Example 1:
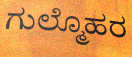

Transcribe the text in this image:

ಗುಲ್ಮೊಹರ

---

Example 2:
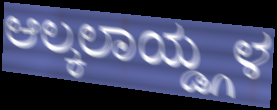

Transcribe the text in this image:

ಆಲ್ಕಲಾಯ್ಡ್ಗಳ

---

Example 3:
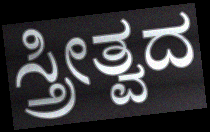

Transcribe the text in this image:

ಸ್ತ್ರೀತ್ವದ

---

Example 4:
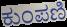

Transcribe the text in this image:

ಕುಂಪಣಿ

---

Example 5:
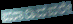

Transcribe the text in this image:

ಮಾಡಿದವರೇ